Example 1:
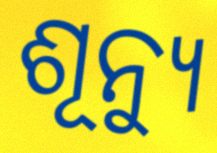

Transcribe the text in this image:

ଶୂନ୍ୟୁ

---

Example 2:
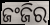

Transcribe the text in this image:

ଜଂଜିର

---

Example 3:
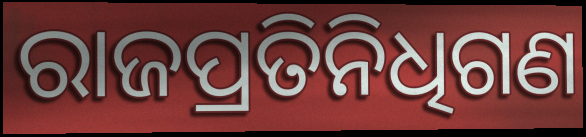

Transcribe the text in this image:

ରାଜପ୍ରତିନିଧିଗଣ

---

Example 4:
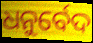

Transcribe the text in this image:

ଧନୁର୍ବେଦ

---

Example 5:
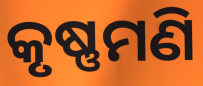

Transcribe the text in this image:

କୃଷ୍ଣମଣି